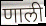
णाली